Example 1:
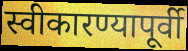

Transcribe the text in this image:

स्वीकारण्यापूर्वी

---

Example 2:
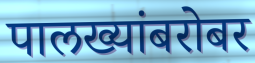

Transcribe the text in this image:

पालख्यांबरोबर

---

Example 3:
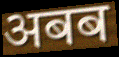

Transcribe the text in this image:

अबब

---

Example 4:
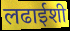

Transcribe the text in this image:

लढाईशी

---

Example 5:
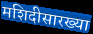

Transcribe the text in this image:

मशिदीसारख्या